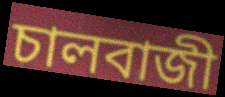
চালবাজী